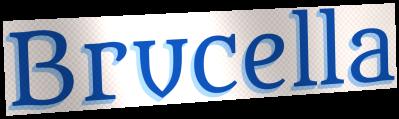
Brucella